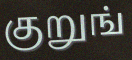
குறுங்